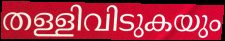
തള്ളിവിടുകയും